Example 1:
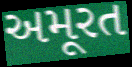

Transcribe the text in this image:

અમૂરત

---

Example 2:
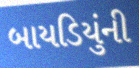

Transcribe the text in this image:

બાયડિયુંની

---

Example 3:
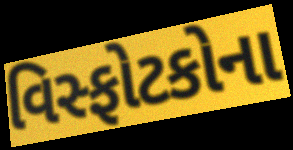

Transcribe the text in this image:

વિસ્ફોટકોના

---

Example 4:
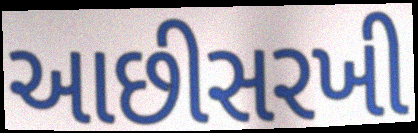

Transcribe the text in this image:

આછીસરખી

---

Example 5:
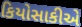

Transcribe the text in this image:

કિયોસાકીએ